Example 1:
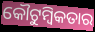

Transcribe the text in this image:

କୌଟୁମ୍ବିକତାର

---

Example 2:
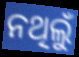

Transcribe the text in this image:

ନଥିଲୁଁ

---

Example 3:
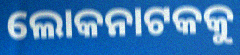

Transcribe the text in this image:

ଲୋକନାଟକକୁ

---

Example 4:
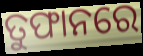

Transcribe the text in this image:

ତୁଫାନରେ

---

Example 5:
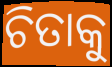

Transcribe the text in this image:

ଚିତାକୁ